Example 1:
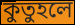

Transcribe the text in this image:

কুতুহলে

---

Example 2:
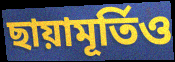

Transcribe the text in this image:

ছায়ামূর্তিও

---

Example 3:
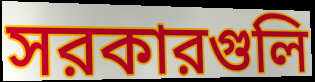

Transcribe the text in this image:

সরকারগুলি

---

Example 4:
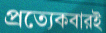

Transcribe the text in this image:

প্রত্যেকবারই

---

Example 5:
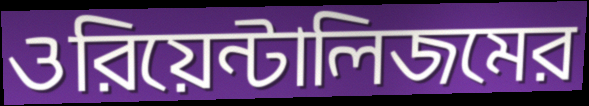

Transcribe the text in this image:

ওরিয়েন্টালিজমের